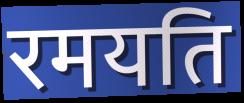
रमयति